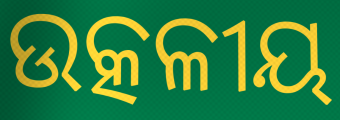
ଉତ୍କଳୀୟ